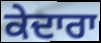
ਕੇਦਾਰਾ